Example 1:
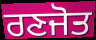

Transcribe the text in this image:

ਰਣਜੋਤ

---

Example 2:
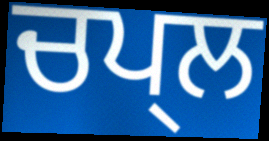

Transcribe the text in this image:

ਚਪ੍ਲ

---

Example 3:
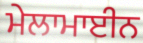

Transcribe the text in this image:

ਮੇਲਾਮਾਈਨ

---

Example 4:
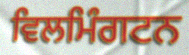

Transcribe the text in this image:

ਵਿਲਮਿੰਗਟਨ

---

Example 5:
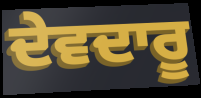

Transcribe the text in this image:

ਦੇਵਦਾਰੂ